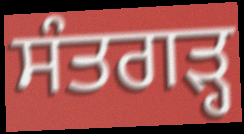
ਸੰਤਗੜ੍ਹ